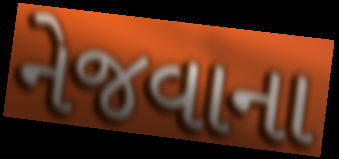
નેજવાના